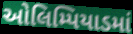
ઓલિમ્પિયાડમાં